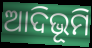
ଆଦିଭୂମି